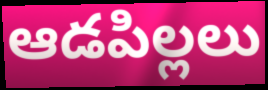
ఆడపిల్లలు